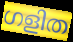
ഗളിത